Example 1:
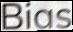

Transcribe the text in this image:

Bias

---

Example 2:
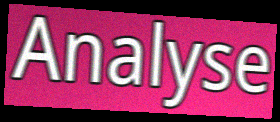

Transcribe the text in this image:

Analyse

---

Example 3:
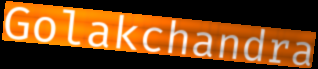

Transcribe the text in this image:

Golakchandra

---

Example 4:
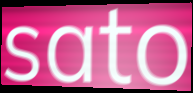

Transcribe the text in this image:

sato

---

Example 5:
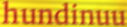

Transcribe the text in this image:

hundinuu